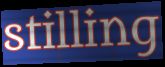
stilling